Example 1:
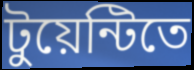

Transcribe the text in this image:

টুয়েন্টিতে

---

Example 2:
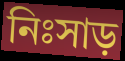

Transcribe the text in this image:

নিঃসাড়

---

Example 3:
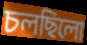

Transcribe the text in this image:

চলছিলো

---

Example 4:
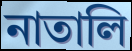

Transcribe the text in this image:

নাতালি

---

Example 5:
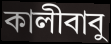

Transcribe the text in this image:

কালীবাবু